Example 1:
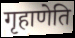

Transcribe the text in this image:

गृहाणेति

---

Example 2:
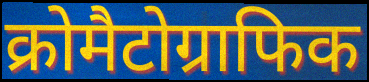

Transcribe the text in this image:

क्रोमैटोग्राफिक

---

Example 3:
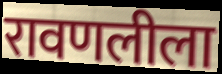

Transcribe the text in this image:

रावणलीला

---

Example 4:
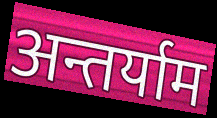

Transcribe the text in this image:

अन्तर्याम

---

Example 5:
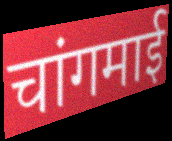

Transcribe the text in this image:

चांगमाई